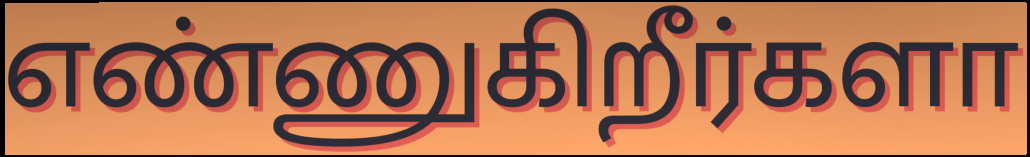
எண்ணுகிறீர்களா